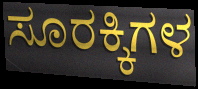
ಸೂರಕ್ಕಿಗಳ